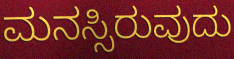
ಮನಸ್ಸಿರುವುದು